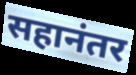
सहानंतर